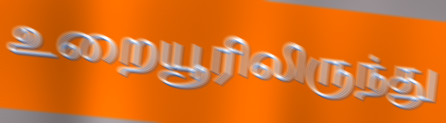
உறையூரிலிருந்து